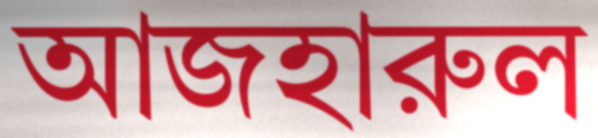
আজহারুল